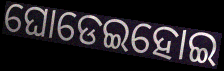
ଘୋଡେଇହୋଇ